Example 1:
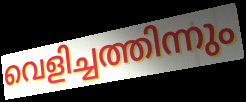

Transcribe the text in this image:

വെളിച്ചത്തിന്നും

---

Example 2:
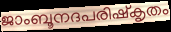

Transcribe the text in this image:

ജാംബൂനദപരിഷ്കൃതം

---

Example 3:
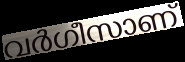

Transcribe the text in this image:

വർഗീസാണ്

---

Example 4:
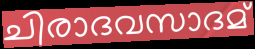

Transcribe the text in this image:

ചിരാദവസാദമ്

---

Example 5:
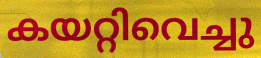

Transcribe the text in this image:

കയറ്റിവെച്ചു